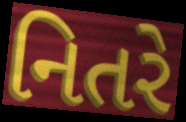
નિતરે